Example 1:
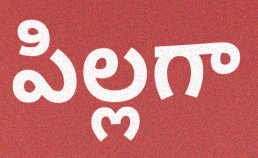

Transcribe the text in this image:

పిల్లగా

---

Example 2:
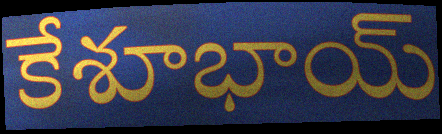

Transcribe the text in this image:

కేశూభాయ్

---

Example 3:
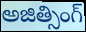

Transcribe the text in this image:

అజిత్సింగ్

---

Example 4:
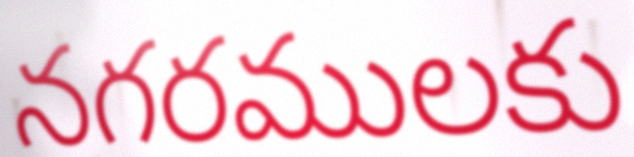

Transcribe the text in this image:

నగరములకు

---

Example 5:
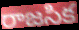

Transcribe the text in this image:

రాజసిక